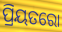
ପ୍ରିୟତରୋ